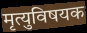
मृत्युविषयक